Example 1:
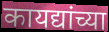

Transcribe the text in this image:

कायद्यांच्या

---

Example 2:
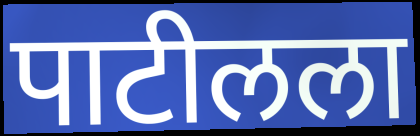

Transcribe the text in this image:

पाटीलला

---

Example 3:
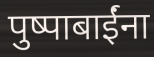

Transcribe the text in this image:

पुष्पाबाईंना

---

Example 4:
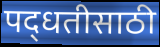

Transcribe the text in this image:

पद्धतीसाठी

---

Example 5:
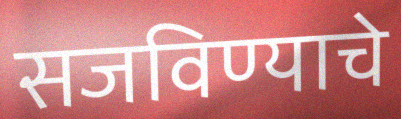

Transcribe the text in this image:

सजविण्याचे